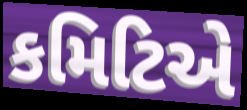
કમિટિએ